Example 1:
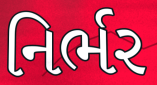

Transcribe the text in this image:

નિર્ભર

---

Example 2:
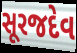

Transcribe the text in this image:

સૂરજદેવ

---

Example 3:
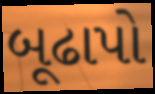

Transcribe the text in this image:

બૂઢાપો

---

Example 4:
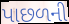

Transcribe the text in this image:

પાછળની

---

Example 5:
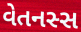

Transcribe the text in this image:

વેતનસ્સ